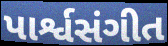
પાર્શ્વસંગીત